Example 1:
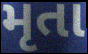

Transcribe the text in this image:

મૃતા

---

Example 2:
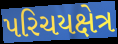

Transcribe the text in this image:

પરિચયક્ષેત્ર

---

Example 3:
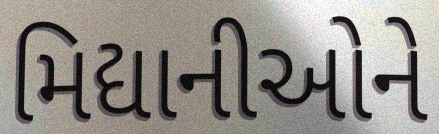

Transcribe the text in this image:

મિદ્યાનીઓને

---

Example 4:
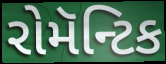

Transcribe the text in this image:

રોમૅન્ટિક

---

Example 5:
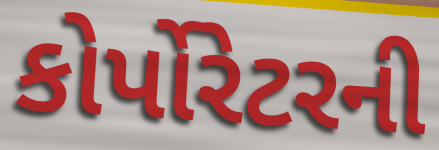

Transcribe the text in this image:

કોર્પોરેટરની